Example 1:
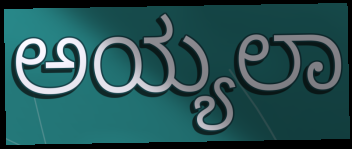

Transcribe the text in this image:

ಅಯ್ಯಲಾ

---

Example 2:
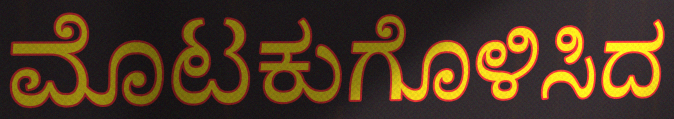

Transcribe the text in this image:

ಮೊಟಕುಗೊಳಿಸಿದ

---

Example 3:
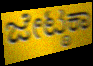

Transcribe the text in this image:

ಜೇಟ್ಠಕಾ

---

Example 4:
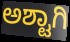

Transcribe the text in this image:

ಅಶ್ಟಾಗಿ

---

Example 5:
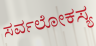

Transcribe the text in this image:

ಸರ್ವಲೋಕಸ್ಯ